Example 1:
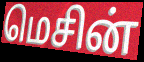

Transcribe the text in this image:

மெசின்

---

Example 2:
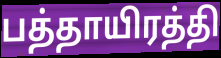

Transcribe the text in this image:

பத்தாயிரத்தி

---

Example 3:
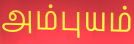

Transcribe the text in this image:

அம்புயம்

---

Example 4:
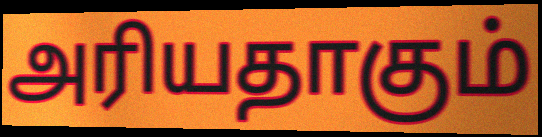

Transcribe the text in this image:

அரியதாகும்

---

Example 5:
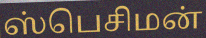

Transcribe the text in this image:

ஸ்பெசிமன்